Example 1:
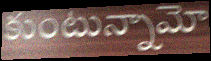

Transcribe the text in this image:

కుంటున్నామో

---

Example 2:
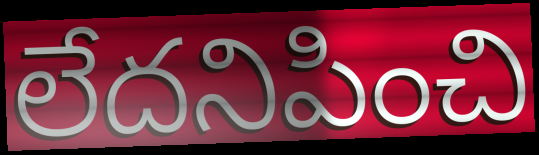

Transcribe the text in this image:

లేదనిపించి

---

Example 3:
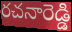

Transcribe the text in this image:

రచనారెడ్డి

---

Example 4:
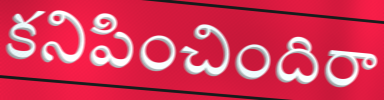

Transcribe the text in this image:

కనిపించిందిరా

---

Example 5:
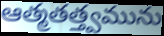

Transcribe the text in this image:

ఆత్మతత్త్వమును